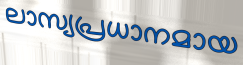
ലാസ്യപ്രധാനമായ